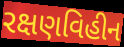
રક્ષણવિહીન